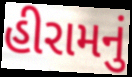
હીરામનું